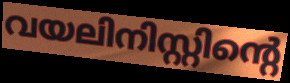
വയലിനിസ്റ്റിന്റെ